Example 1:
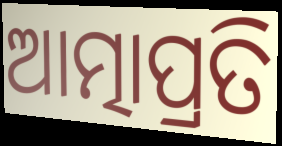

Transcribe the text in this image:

ଆତ୍ମାପ୍ରତି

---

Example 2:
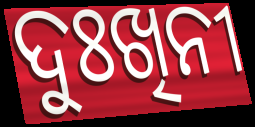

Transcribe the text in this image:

ଦୁଃଖିନୀ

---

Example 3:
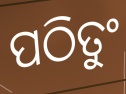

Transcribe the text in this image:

ପଠିତୁଂ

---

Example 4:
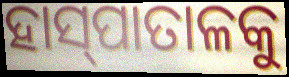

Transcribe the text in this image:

ହାସ୍‍ପାତାଳକୁ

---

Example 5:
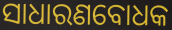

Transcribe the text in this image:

ସାଧାରଣବୋଧକ